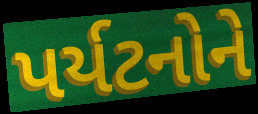
પર્યટનોને